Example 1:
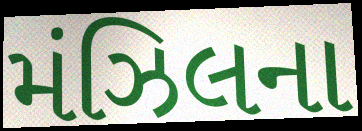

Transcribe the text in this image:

મંઝિલના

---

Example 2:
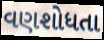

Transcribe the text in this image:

વણશોધતા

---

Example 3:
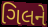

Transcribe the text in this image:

ગિલને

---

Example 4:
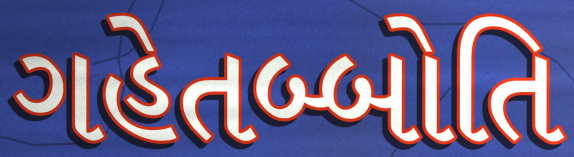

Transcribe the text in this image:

ગહેતબ્બોતિ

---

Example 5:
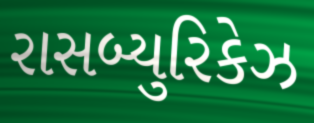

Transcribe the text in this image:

રાસબ્યુરિકેઝ